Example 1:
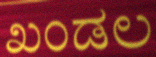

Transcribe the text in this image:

ಖಂಡಲ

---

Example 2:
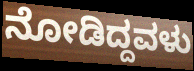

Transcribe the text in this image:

ನೋಡಿದ್ದವಳು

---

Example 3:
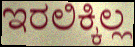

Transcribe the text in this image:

ಇರಲಿಕ್ಕಿಲ್ಲ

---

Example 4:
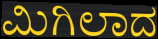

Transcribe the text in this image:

ಮಿಗಿಲಾದ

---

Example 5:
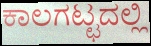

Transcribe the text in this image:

ಕಾಲಗಟ್ಟದಲ್ಲಿ